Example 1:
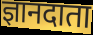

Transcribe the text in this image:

ज्ञानदाता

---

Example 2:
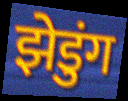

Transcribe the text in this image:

झेडुंग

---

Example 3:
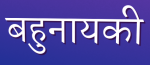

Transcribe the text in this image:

बहुनायकी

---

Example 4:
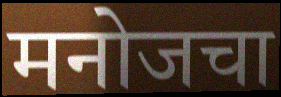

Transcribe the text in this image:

मनोजचा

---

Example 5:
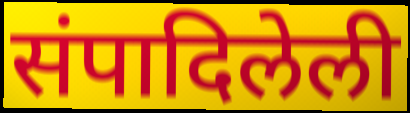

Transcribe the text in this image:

संपादिलेली